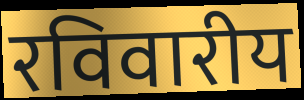
रविवारीय